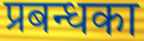
प्रबन्धका